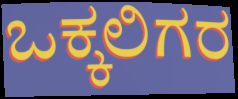
ಒಕ್ಕಲಿಗರ